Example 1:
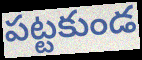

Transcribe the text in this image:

పట్టకుండ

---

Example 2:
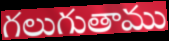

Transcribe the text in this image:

గలుగుతాము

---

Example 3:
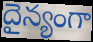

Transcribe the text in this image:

దైన్యంగా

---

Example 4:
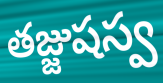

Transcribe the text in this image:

తజ్జుషస్వ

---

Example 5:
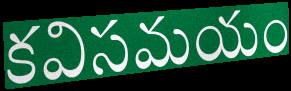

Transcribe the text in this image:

కవిసమయం